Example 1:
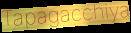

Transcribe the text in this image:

Tapagacchiya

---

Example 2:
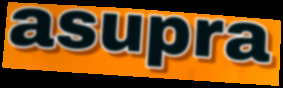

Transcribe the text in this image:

asupra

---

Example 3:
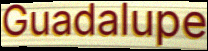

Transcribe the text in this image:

Guadalupe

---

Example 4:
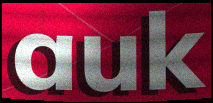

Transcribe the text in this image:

auk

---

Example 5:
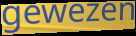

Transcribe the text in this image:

gewezen